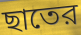
ছাতের